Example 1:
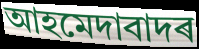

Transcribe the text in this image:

আহমেদাবাদৰ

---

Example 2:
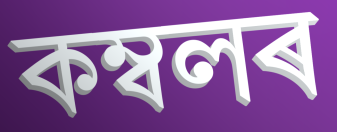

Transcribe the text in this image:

কম্বলৰ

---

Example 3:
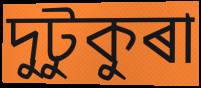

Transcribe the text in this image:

দুটুকুৰা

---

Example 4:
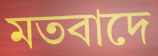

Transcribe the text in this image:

মতবাদে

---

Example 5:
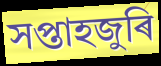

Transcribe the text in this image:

সপ্তাহজুৰি